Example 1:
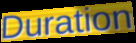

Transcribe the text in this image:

Duration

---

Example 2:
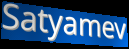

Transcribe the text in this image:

Satyamev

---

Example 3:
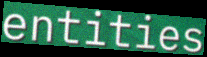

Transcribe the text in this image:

entities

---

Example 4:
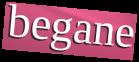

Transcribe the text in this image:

begane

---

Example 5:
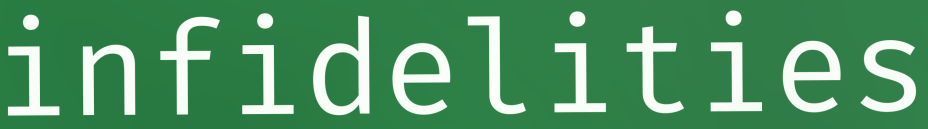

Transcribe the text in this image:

infidelities